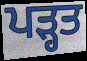
ਪਡ਼੍ਹਤ